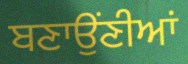
ਬਣਾਉਂਣੀਆਂ